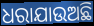
ଧରାଯାଉଅଛି